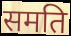
समति